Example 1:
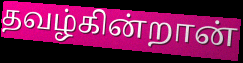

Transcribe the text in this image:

தவழ்கின்றான்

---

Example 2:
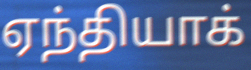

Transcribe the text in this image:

ஏந்தியாக்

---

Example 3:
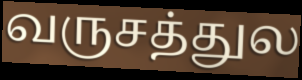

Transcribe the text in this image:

வருசத்துல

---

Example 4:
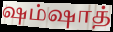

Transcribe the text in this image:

ஷம்ஷாத்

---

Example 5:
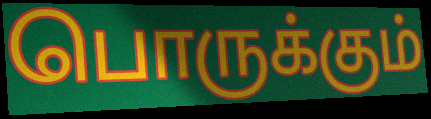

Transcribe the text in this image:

பொருக்கும்